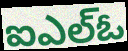
ఐఎల్ఓ